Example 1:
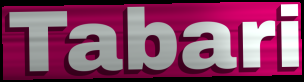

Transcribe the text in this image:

Tabari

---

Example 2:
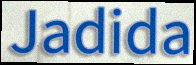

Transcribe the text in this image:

Jadida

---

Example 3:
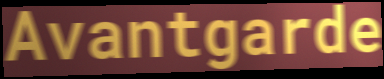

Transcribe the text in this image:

Avantgarde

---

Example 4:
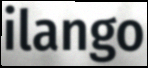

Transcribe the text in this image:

ilango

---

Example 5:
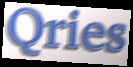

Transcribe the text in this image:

Qries